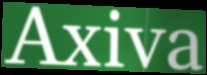
Axiva